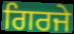
ਗਿਰਜੇ